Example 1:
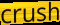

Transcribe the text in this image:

crush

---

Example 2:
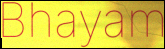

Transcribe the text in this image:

Bhayam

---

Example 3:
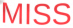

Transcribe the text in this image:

MISS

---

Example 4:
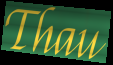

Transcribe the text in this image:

Thau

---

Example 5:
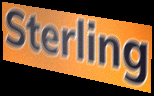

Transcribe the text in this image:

Sterling